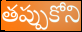
తప్పుకోని